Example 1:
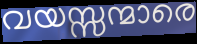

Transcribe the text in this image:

വയസ്സന്മാരെ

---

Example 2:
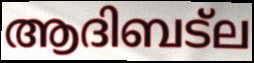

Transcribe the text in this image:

ആദിബട്ല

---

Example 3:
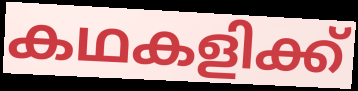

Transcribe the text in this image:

കഥകളിക്ക്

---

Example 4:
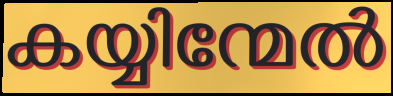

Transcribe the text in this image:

കയ്യിന്മേൽ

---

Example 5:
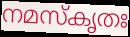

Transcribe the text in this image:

നമസ്കൃതഃ